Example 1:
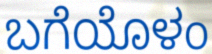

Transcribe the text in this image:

ಬಗೆಯೊಳಂ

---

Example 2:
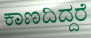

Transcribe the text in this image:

ಕಾಣದಿದ್ದರೆ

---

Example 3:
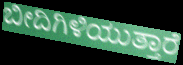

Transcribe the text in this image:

ಬೀದಿಗಿಳಿಯುತ್ತಾರೆ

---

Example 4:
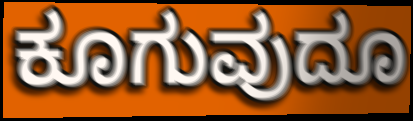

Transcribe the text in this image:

ಕೂಗುವುದೂ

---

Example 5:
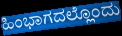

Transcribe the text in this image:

ಹಿಂಭಾಗದಲ್ಲೊಂದು